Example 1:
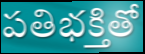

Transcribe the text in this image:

పతిభక్తితో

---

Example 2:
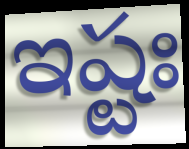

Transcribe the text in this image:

ఇష్టః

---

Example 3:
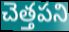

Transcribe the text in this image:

చెత్తపని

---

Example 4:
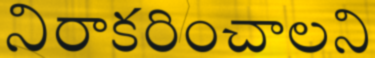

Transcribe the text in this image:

నిరాకరించాలని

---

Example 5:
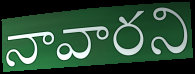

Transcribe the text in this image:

నావారని